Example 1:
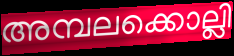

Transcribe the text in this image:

അമ്പലക്കൊല്ലി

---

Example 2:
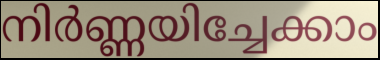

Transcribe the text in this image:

നിർണ്ണയിച്ചേക്കാം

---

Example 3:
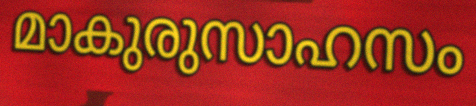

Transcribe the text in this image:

മാകുരുസാഹസം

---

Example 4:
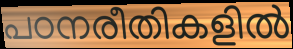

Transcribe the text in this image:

പഠനരീതികളിൽ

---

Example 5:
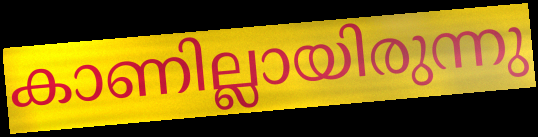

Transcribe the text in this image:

കാണില്ലായിരുന്നു